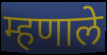
म्हणाले